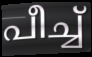
പീച്ച്